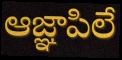
ఆజ్ఞాపిలే